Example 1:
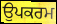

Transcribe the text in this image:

ਉਪਕਰਮ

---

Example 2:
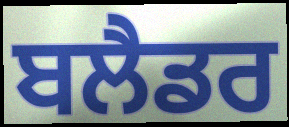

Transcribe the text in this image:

ਬਲੈਡਰ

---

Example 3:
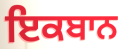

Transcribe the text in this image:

ਇਕਬਾਨ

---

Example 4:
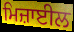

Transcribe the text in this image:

ਮਿਜ਼ਾਈਲ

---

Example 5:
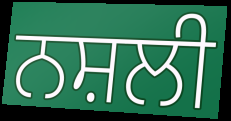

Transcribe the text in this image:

ਨਸ਼ਲੀ